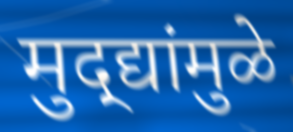
मुद्द्यांमुळे